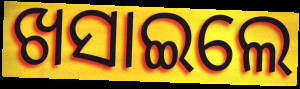
ଖସାଇଲେ